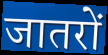
जातरों